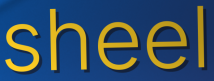
sheel